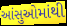
આંસુઓમાંથી